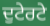
ਦੁਟੇਰਟੇ